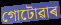
গোটোৱাৰ